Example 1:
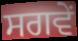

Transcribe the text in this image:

ਸਗਵੇਂ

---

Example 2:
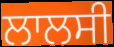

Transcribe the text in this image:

ਲਾਲਸੀ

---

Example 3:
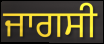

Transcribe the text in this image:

ਜਾਗਸੀ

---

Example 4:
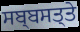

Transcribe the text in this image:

ਸਬ੍ਬਸਤ੍ਤੇ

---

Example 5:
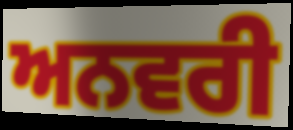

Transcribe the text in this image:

ਅਨਵਰੀ